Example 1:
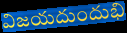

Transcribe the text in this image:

విజయదుందుభి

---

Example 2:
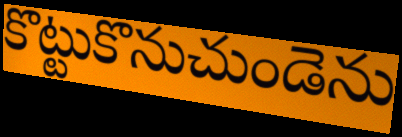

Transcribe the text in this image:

కొట్టుకొనుచుండెను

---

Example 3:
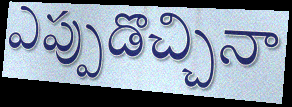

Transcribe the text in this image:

ఎప్పుడొచ్చినా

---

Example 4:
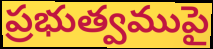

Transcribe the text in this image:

ప్రభుత్వముపై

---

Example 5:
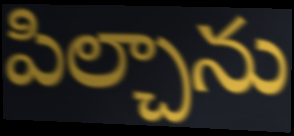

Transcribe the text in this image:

పిల్చాను